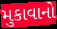
મુકાવાનો